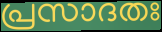
പ്രസാദതഃ